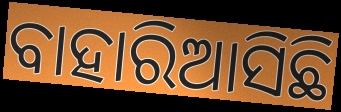
ବାହାରିଆସିଛି